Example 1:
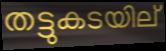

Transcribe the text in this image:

തട്ടുകടയില്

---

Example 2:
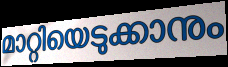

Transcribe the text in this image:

മാറ്റിയെടുക്കാനും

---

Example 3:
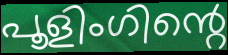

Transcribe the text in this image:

പൂളിംഗിന്റെ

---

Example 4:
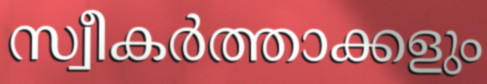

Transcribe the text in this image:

സ്വീകർത്താക്കളും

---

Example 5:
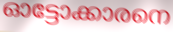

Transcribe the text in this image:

ഓട്ടോക്കാരനെ